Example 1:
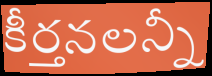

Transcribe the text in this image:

కీర్తనలన్నీ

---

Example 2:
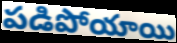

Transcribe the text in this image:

పడిపోయాయి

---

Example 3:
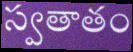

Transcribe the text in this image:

స్వతాతం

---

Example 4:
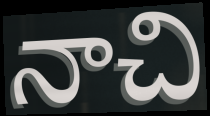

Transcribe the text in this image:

నాచి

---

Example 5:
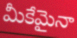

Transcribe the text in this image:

మీకేమైనా